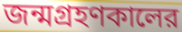
জন্মগ্রহণকালের